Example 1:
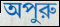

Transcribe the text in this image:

অপুরু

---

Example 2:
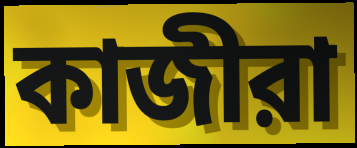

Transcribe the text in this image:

কাজীরা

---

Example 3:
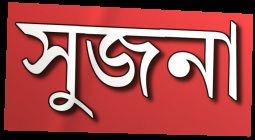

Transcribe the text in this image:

সুজনা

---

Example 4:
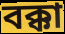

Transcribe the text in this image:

বক্কা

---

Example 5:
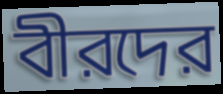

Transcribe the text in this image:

বীরদের